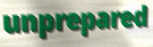
unprepared